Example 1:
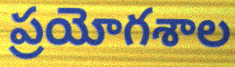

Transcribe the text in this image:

ప్రయోగశాల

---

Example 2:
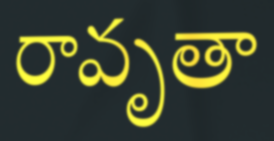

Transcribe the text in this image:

రావృతా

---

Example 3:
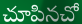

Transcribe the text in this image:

చూపినచో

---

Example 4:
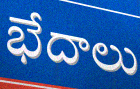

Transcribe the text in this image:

భేదాలు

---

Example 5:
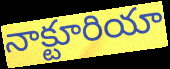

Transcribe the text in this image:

నాక్టూరియా